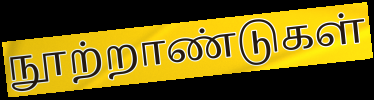
நூற்றாண்டுகள்